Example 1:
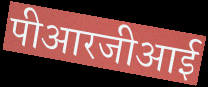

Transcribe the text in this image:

पीआरजीआई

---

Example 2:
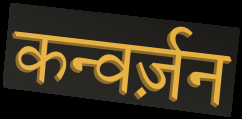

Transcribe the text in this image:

कन्वर्ज़न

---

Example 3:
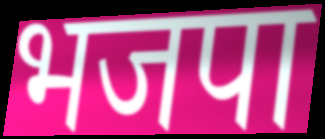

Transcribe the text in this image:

भजपा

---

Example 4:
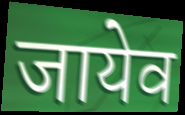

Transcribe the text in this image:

जायेव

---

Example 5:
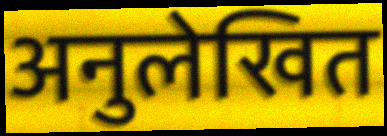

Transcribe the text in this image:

अनुलेखित